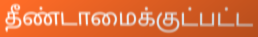
தீண்டாமைக்குட்பட்ட